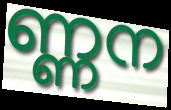
ണ്ണന